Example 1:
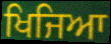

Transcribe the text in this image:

ਖਿਜਿਆ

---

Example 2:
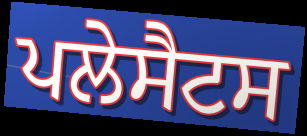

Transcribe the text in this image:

ਪਲੇਸੈਟਸ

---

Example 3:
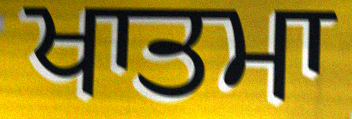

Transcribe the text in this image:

ਖਾਤਮਾ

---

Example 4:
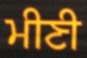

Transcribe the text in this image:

ਮੀਣੀ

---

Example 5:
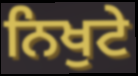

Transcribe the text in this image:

ਨਿਖੁਟੇ